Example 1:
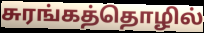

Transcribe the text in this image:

சுரங்கத்தொழில்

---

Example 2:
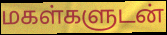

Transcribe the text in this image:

மகள்களுடன்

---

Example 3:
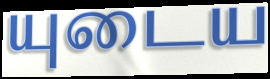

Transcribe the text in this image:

யுடைய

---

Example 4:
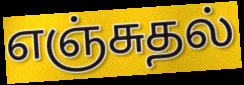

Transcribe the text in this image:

எஞ்சுதல்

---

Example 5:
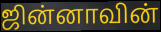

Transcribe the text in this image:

ஜின்னாவின்